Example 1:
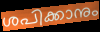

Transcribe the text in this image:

ശപിക്കാനും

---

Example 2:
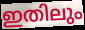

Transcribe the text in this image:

ഇതിലും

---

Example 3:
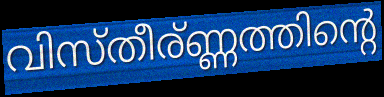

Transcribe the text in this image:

വിസ്തീര്ണ്ണത്തിന്റെ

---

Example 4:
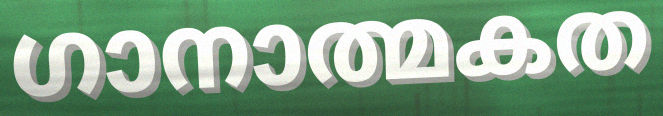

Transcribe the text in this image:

ഗാനാത്മകത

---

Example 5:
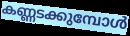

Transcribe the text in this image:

കണ്ണടക്കുമ്പോൾ